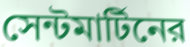
সেন্টমার্টিনের